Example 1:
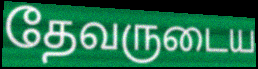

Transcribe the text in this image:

தேவருடைய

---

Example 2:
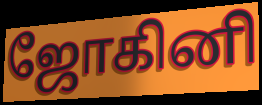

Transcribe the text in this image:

ஜோகினி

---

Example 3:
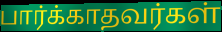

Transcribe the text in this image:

பார்க்காதவர்கள்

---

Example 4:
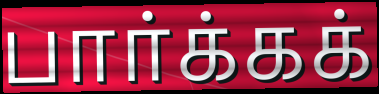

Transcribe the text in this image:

பார்க்கக்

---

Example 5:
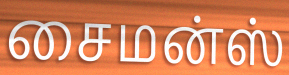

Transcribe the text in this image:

சைமன்ஸ்